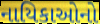
નાયિકાઓનો